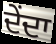
ਦੇਂਦਾ